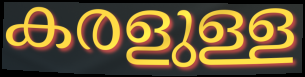
കരളുള്ള